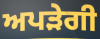
ਅਪੜੇਗੀ